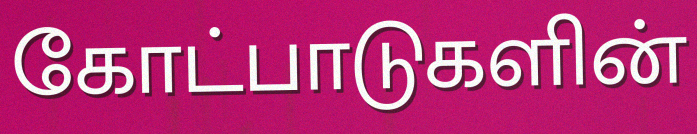
கோட்பாடுகளின்